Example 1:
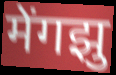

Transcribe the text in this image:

मेंगझु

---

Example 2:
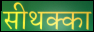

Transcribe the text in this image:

सीथक्का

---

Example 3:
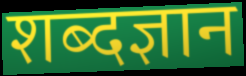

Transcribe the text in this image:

शब्दज्ञान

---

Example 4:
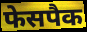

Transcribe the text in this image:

फेसपैक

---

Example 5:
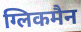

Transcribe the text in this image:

ग्लिकमैन